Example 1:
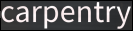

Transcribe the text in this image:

carpentry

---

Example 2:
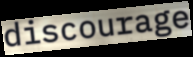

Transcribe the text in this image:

discourage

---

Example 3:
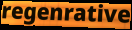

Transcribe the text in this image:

regenrative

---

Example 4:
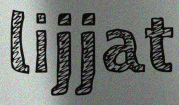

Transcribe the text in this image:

lijjat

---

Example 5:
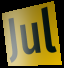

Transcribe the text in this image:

Jul